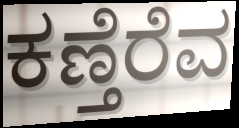
ಕಣ್ತೆರೆವ